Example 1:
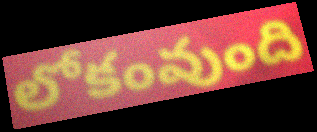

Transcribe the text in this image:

లోకంవుంది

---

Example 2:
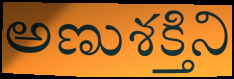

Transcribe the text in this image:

అణుశక్తిని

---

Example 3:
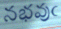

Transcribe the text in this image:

నభవుఁ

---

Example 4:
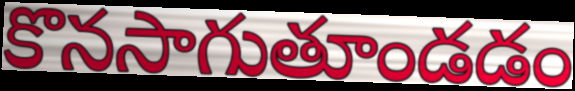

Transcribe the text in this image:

కొనసాగుతూండడం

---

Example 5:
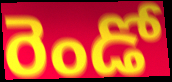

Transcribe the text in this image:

రెండో